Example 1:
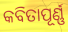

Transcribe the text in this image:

କବିତାପୂର୍ଣ୍ଣ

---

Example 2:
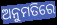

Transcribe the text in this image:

ଅନୁମତିରେ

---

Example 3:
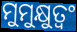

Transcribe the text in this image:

ମୁମୁକ୍ଷୁତ୍ୱଂ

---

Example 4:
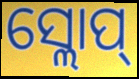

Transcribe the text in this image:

ସ୍ଲୋପ୍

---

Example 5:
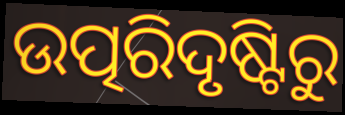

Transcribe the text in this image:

ଉତ୍ପରିଦୃଷ୍ଟିରୁ